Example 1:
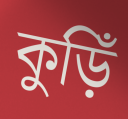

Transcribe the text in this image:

কুড়িঁ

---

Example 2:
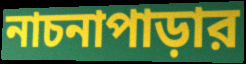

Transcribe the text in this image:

নাচনাপাড়ার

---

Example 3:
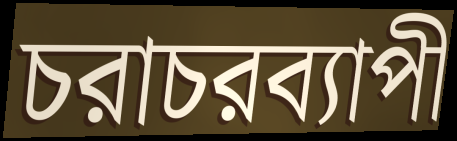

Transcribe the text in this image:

চরাচরব্যাপী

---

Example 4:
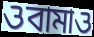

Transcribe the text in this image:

ওবামাও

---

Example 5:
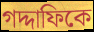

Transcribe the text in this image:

গদ্দাফিকে